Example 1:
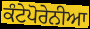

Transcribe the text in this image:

ਕੰਟੇਪੋਰੇਨੀਆ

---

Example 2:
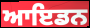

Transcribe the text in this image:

ਆਇਡਨ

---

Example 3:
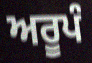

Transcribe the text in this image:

ਅਰੂਪੰ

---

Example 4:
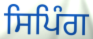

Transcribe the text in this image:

ਸਿਪਿੰਗ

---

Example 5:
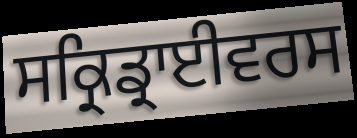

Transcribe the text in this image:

ਸਕ੍ਰਿਡ੍ਰਾਈਵਰਸ